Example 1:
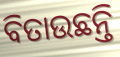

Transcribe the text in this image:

ବିତାଉଛନ୍ତି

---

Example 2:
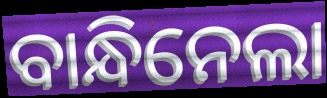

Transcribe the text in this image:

ବାନ୍ଧିନେଲା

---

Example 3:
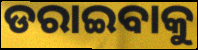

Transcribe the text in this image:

ଡରାଇବାକୁ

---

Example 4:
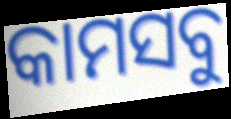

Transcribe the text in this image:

କାମସବୁ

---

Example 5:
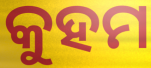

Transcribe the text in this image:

କୁହମ